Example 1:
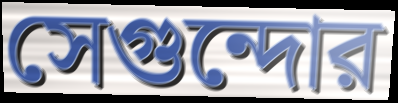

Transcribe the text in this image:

সেগুন্দোর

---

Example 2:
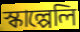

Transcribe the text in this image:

স্কাল্পেলি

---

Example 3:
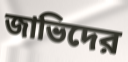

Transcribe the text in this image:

জাভিদের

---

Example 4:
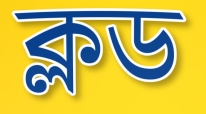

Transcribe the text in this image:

ক্লড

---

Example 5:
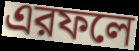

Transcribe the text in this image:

এরফলে